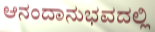
ಆನಂದಾನುಭವದಲ್ಲಿ